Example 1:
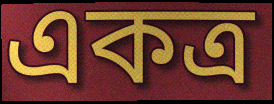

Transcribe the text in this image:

একত্র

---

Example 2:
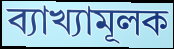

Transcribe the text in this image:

ব্যাখ্যামূলক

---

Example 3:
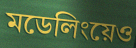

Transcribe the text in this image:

মডেলিংয়েও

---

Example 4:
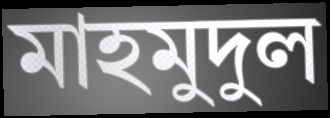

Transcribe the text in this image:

মাহমুদুল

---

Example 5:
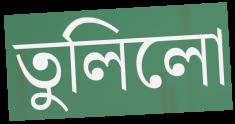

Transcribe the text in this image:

তুলিলো